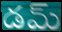
డమ్